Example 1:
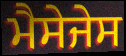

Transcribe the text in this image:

ਮੈਸੇਜੇਸ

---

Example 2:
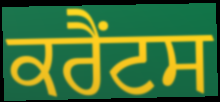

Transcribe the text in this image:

ਕਰੈਂਟਸ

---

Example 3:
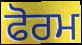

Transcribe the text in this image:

ਫੋਰਮ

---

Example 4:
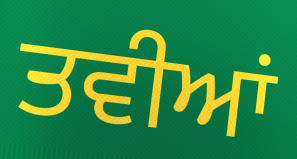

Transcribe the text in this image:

ਤਵੀਆਂ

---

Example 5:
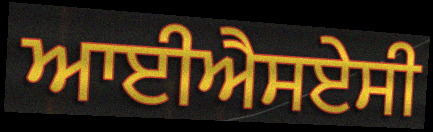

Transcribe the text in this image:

ਆਈਐਸਏਸੀ